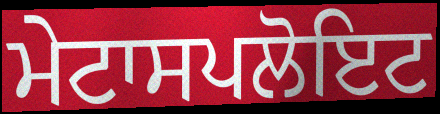
ਮੇਟਾਸਪਲੋਇਟ